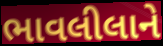
ભાવલીલાને